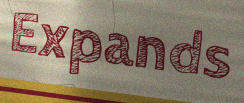
Expands